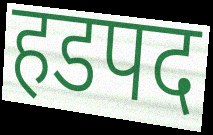
हडपद